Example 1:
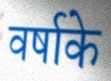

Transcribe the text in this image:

वर्षाके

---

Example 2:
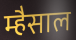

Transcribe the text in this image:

म्हैसाल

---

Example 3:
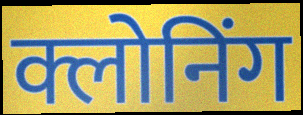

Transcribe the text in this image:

क्‍लोनिंग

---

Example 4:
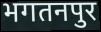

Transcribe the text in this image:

भगतनपुर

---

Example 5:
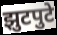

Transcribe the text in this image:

झुटपुटे